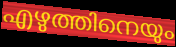
എഴുത്തിനെയും